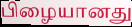
பிழையானது